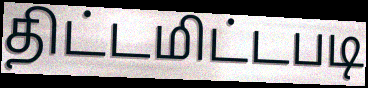
திட்டமிட்டபடி